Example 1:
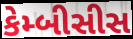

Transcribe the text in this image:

કેમ્બીસીસ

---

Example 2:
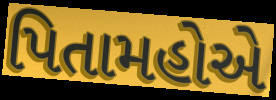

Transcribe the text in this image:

પિતામહોએ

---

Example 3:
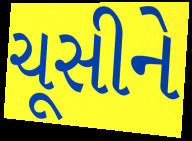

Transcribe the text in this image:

ચૂસીને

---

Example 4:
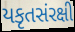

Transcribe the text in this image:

યકૃતસંરક્ષી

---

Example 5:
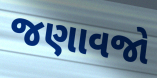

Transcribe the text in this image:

જણાવજો